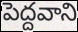
పెద్దవాని